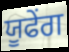
ਯੂਫੇਂਗ